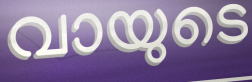
വായുടെ